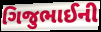
ગિજુભાઈની